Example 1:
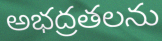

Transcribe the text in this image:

అభద్రతలను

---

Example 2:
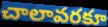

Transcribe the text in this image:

చాలావరకూ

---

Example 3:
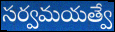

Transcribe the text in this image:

సర్వమయత్వే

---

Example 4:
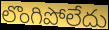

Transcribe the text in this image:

లొంగిపోలేదు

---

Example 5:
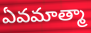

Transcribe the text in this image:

ఏవమాత్మా